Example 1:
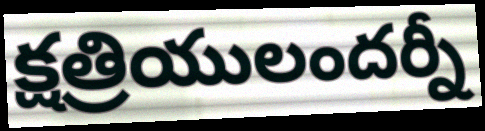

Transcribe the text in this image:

క్షత్రియులందర్నీ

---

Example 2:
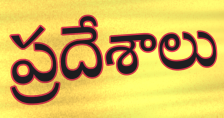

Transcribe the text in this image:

ప్రదేశాలు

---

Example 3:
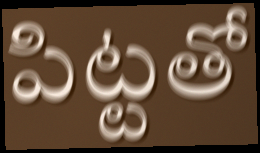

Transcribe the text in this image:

పిట్టతో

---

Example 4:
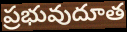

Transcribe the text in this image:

ప్రభువుదూత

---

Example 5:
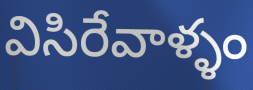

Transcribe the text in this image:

విసిరేవాళ్ళం